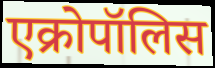
एक्रोपॉलिस